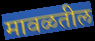
मावळतील